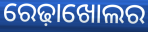
ରେଢ଼ାଖୋଲର